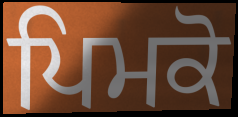
ਪਿਮਕੋ